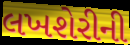
લખશેરીની